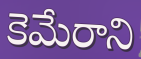
కెమేరాని